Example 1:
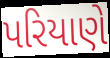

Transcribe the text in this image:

પરિયાણે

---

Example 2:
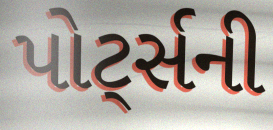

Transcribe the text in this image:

પોર્ટ્સની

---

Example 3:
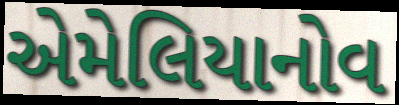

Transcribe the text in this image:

એમેલિયાનોવ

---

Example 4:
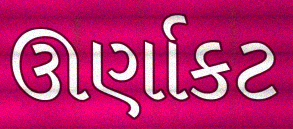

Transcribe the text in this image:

ઊર્ણાકટ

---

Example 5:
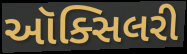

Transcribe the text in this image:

ઑક્સિલરી